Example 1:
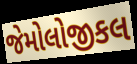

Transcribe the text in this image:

જેમોલોજીકલ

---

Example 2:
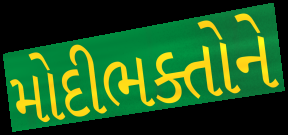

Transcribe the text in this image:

મોદીભક્તોને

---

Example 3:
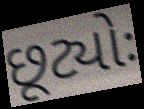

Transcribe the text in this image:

છૂટ્યોઃ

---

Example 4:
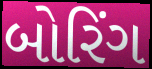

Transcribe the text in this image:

બોરિંગ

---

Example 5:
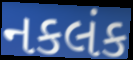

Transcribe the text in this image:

નકલંક